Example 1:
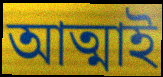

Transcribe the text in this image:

আত্মাই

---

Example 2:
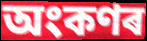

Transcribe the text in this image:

অংকণৰ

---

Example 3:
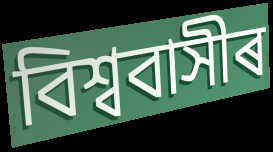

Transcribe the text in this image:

বিশ্ববাসীৰ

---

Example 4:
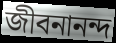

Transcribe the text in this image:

জীবনানন্দ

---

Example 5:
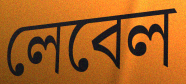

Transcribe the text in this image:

লেবেল